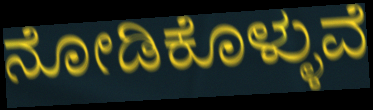
ನೋಡಿಕೊಳ್ಳುವೆ